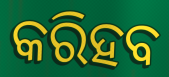
କରିହବ